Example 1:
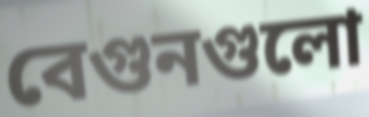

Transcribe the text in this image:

বেগুনগুলো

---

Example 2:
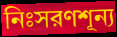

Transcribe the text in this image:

নিঃসরণশূন্য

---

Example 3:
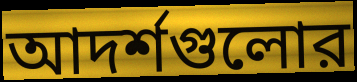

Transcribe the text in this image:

আদর্শগুলোর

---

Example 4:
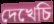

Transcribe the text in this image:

দেখেচি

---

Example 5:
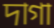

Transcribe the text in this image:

দাগা